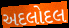
અદલોદલ